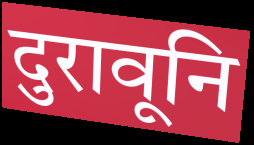
दुरावूनि